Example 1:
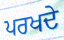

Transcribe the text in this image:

ਪਰਖਦੇ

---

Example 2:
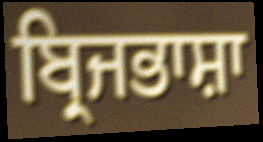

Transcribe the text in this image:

ਬ੍ਰਿਜਭਾਸ਼ਾ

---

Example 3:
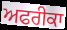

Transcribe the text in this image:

ਅਫਰੀਕਾ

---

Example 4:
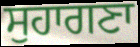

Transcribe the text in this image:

ਸੁਹਾਗਣਾ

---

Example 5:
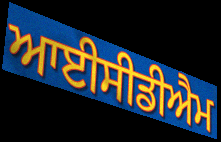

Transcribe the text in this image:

ਆਈਸੀਡੀਐਮ